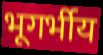
भूगर्भीय